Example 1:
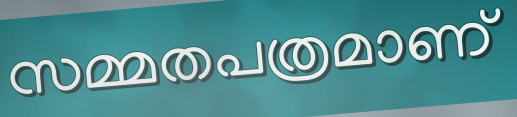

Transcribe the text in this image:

സമ്മതപത്രമാണ്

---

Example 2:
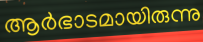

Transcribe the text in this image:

ആർഭാടമായിരുന്നു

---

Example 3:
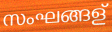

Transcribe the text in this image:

സംഘങ്ങള്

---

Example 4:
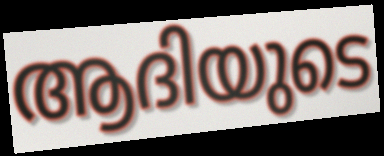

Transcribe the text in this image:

ആദിയുടെ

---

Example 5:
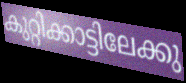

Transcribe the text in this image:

കുറ്റിക്കാട്ടിലേക്കു